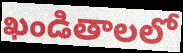
ఖండితాలలో